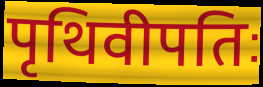
पृथिवीपतिः